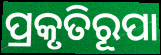
ପ୍ରକୃତିରୂପା